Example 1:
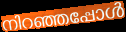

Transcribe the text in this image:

നിറഞ്ഞപ്പോൾ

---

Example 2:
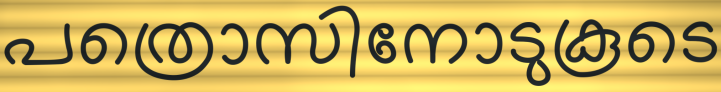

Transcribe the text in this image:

പത്രൊസിനോടുകൂടെ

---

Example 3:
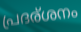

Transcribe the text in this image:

പ്രദര്ശനം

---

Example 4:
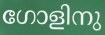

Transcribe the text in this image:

ഗോളിനു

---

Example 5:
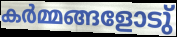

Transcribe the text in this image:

കർമ്മങ്ങളോടു്